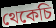
থেকেচি